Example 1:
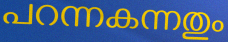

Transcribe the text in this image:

പറന്നകന്നതും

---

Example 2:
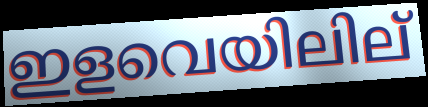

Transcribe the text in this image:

ഇളവെയിലില്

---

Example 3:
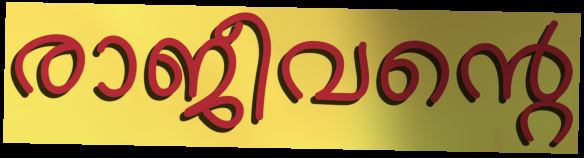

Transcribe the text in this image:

രാജീവന്റെ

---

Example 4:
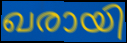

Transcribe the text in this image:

ഖരായി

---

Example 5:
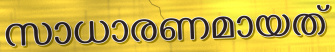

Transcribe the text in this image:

സാധാരണമായത്